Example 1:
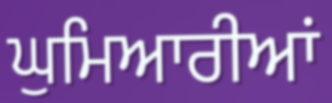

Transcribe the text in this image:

ਘੁਮਿਆਰੀਆਂ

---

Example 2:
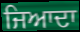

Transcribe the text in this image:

ਜਿਆਦਾ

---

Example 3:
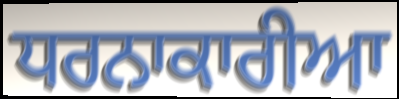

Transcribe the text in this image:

ਧਰਨਾਕਾਰੀਆ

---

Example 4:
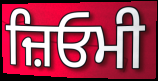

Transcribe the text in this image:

ਜ਼ਿਓਮੀ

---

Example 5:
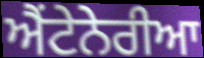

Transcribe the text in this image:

ਐਂਟੇਨੇਰੀਆ